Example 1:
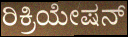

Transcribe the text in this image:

ರಿಕ್ರಿಯೇಷನ್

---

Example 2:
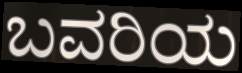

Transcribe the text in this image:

ಬವರಿಯ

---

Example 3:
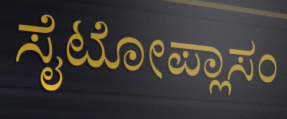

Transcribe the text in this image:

ಸೈಟೋಪ್ಲಾಸಂ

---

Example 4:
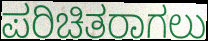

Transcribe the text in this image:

ಪರಿಚಿತರಾಗಲು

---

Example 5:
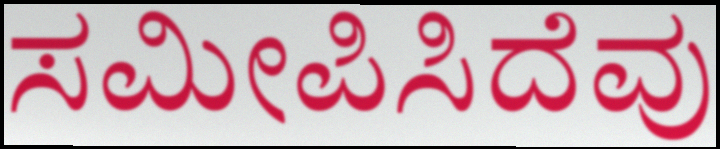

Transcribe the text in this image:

ಸಮೀಪಿಸಿದೆವು